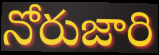
నోరుజారి